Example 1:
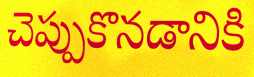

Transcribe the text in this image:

చెప్పుకొనడానికి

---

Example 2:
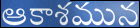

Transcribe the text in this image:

ఆకాశమున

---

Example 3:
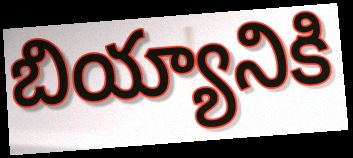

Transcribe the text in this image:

బియ్యానికి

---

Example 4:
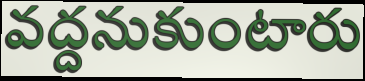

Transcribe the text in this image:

వద్దనుకుంటారు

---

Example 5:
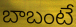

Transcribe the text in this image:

బాబంటే